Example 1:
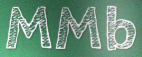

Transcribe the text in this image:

MMb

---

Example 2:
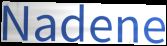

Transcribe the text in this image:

Nadene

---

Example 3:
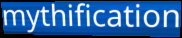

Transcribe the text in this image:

mythification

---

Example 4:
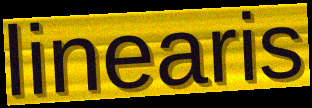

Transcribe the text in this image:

linearis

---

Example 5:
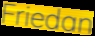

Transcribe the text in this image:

Friedan